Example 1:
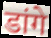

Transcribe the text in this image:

डांगे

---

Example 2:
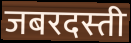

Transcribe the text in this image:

जबरदस्ती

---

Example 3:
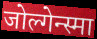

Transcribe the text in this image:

जोल्गेन्स्मा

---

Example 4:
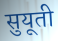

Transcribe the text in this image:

सुयूती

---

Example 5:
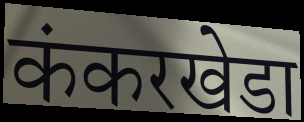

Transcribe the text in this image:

कंकरखेडा